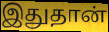
இதுதான்